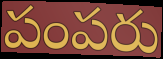
పంపరు